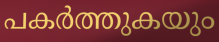
പകർത്തുകയും